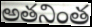
అతనింత